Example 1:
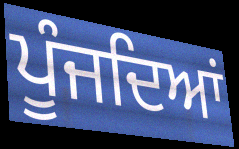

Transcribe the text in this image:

ਪੂੰਜਦਿਆਂ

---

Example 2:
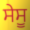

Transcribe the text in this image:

ਸੇਸੂ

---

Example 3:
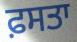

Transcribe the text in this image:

ਫ਼ਸਤਾ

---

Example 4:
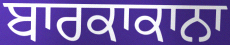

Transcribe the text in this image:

ਬਾਰਕਾਕਾਨਾ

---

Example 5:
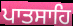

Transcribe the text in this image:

ਪਾਤਸਾਹਿ